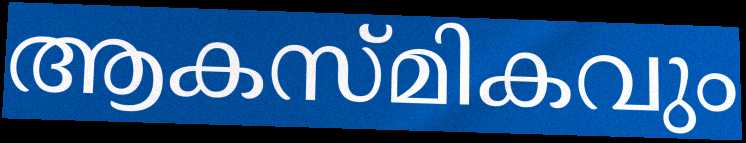
ആകസ്മികവും